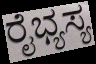
ರೈಭ್ಯಸ್ಯ